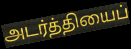
அடர்த்தியைப்